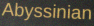
Abyssinian